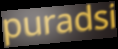
puradsi